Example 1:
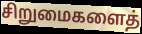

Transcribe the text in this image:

சிறுமைகளைத்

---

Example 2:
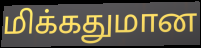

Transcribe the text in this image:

மிக்கதுமான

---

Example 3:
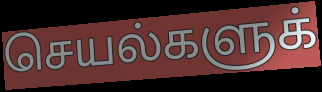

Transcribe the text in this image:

செயல்களுக்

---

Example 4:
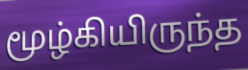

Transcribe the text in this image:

மூழ்கியிருந்த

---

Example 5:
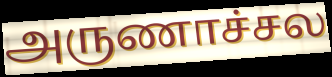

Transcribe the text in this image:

அருணாச்சல